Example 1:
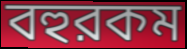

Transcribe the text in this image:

বহুরকম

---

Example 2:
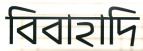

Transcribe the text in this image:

বিবাহাদি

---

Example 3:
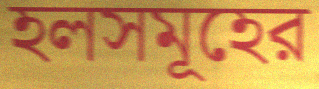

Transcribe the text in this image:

হলসমূহের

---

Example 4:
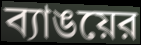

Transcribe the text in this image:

ব্যাঙয়ের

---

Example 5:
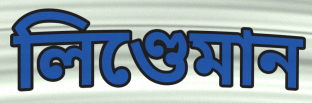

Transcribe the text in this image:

লিণ্ডেমান